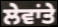
ਲੇਵਾਂਤੇ